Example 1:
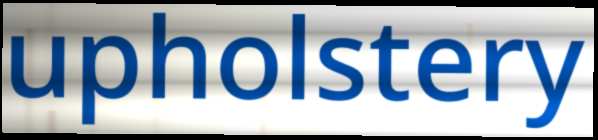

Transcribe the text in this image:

upholstery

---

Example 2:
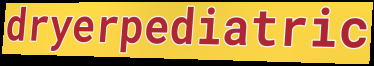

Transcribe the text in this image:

dryerpediatric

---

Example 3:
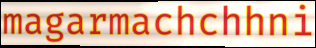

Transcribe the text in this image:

magarmachchhni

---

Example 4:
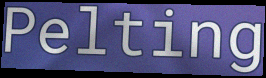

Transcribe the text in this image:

Pelting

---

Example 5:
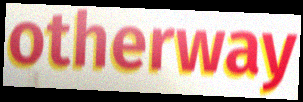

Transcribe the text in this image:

otherway